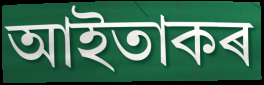
আইতাকৰ